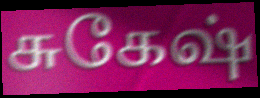
சுகேஷ்